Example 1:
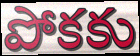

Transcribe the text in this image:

పోకకు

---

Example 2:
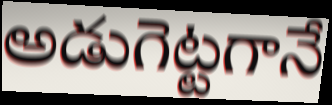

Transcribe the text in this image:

అడుగెట్టగానే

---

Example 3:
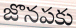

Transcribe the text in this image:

జొనపకు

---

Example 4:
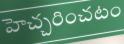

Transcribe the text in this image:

హెచ్చరించటం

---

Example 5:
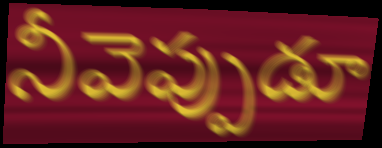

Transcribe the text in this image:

నీవెప్పుడూ